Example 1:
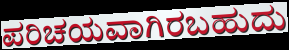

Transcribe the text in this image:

ಪರಿಚಯವಾಗಿರಬಹುದು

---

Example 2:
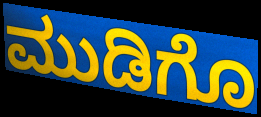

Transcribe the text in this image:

ಮುಡಿಗೊ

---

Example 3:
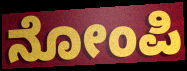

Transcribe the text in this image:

ನೋಂಪಿ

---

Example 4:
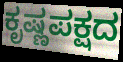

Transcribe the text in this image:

ಕೃಷ್ಣಪಕ್ಷದ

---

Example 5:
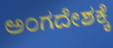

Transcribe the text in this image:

ಅಂಗದೇಶಕ್ಕೆ